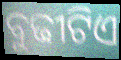
ବୁଢୀଟିଏ